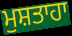
ਮੁਸ਼ਤਾਹਾ